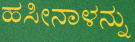
ಹಸೀನಾಳನ್ನು